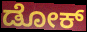
ಡೋಕ್